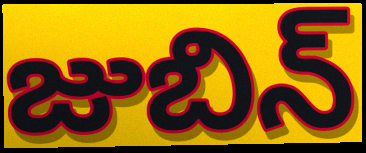
జుబిన్